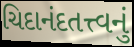
ચિદાનંદતત્ત્વનું